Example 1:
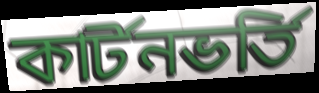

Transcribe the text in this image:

কার্টনভর্তি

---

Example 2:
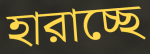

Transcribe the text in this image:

হারাচ্ছে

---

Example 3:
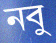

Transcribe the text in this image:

নবু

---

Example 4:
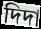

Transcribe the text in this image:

দিদা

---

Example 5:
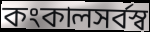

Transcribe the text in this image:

কংকালসর্বস্ব